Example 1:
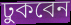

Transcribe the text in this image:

ঢুকবেন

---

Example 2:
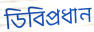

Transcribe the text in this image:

ডিবিপ্রধান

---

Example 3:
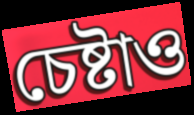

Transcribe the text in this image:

চেষ্টাও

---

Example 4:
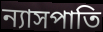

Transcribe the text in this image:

ন্যাসপাতি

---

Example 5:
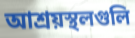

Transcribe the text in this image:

আশ্রয়স্থলগুলি